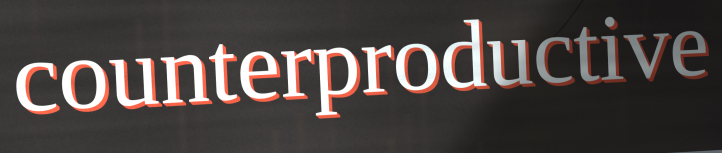
counterproductive